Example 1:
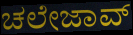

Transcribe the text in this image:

ಚಲೇಜಾವ್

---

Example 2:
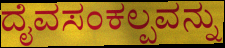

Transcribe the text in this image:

ದೈವಸಂಕಲ್ಪವನ್ನು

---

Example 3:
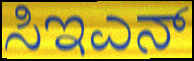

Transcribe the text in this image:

ಸಿಇಎನ್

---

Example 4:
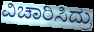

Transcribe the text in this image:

ವಿಚಾರಿಸಿದ್ರು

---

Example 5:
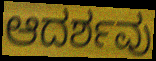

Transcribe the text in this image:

ಆದರ್ಶವು